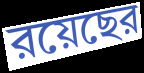
রয়েছের